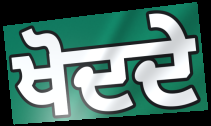
ਖੋਦਦੇ